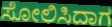
ಸೋಲಿಸಿದಾಗ